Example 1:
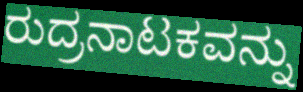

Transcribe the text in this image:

ರುದ್ರನಾಟಕವನ್ನು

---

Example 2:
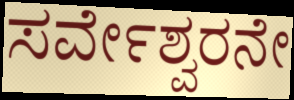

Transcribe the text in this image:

ಸರ್ವೇಶ್ವರನೇ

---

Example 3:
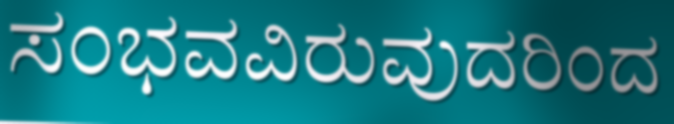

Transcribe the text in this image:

ಸಂಭವವಿರುವುದರಿಂದ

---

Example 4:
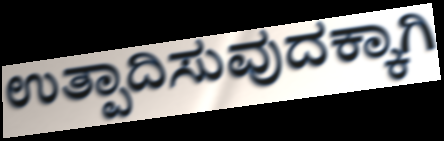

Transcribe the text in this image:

ಉತ್ಪಾದಿಸುವುದಕ್ಕಾಗಿ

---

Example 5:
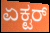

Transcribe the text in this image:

ಏಕ್ಟರ್